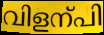
വിളന്പി